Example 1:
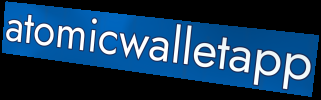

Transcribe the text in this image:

atomicwalletapp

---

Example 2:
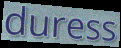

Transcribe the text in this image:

duress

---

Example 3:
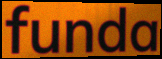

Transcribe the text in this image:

funda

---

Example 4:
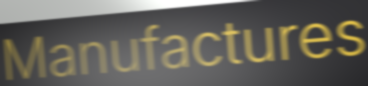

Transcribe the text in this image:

Manufactures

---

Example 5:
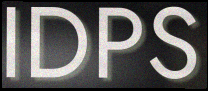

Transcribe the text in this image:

IDPS